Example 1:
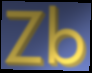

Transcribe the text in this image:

Zb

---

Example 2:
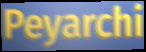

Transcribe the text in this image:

Peyarchi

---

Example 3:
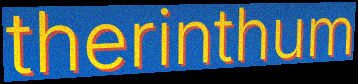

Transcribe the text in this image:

therinthum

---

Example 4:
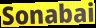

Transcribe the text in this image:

Sonabai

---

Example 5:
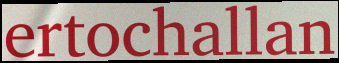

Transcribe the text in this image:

ertochallan